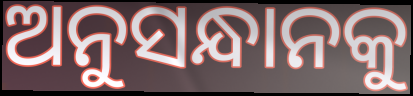
ଅନୁସନ୍ଧାନକୁ